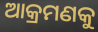
ଆକ୍ରମଣକୁ